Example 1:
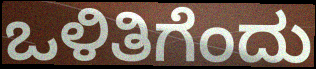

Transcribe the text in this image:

ಒಳಿತಿಗೆಂದು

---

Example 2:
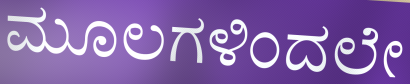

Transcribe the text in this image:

ಮೂಲಗಳಿಂದಲೇ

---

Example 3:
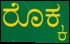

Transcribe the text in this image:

ರೊಕ್ಕ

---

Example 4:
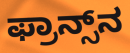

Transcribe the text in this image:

ಫ್ರಾನ್ಸ್‌ನ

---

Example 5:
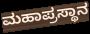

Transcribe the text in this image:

ಮಹಾಪ್ರಸ್ಥಾನ